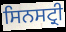
ਸਿਨਸਟ੍ਰੀ